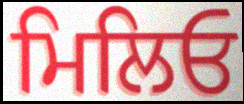
ਮਿਲਿਓ